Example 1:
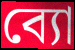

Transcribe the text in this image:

ব্যো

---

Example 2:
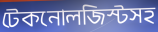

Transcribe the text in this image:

টেকনোলজিস্টসহ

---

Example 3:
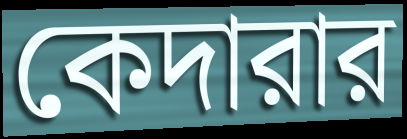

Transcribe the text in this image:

কেদারার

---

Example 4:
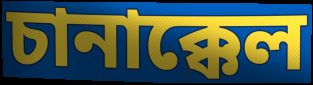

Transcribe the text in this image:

চানাক্কেল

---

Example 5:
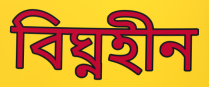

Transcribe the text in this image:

বিঘ্নহীন